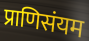
प्राणिसंयम